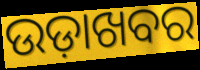
ଉଡ଼ାଖବର